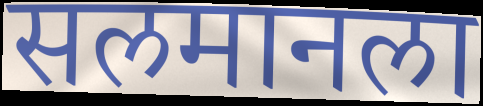
सलमानला